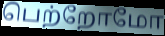
பெற்றோமோ